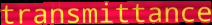
transmittance